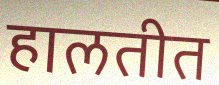
हालतीत